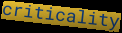
criticality